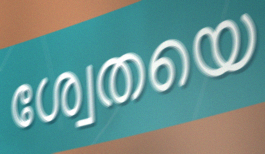
ശ്വേതയെ